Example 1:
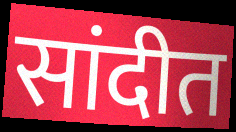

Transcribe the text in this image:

सांदीत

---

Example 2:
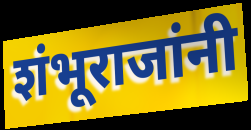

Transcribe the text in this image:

शंभूराजांनी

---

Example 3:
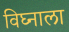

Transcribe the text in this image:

विघ्नाला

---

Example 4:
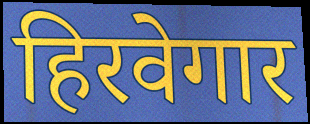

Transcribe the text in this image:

हिरवेगार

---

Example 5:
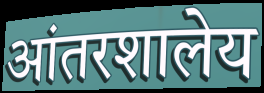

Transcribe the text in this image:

आंतरशालेय